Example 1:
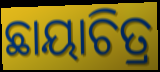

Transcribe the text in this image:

ଛାୟାଚିତ୍ର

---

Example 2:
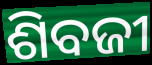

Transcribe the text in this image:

ଶିବଜୀ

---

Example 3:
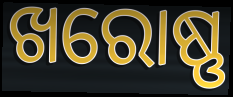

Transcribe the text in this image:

ଖରୋଷ୍ଣ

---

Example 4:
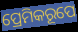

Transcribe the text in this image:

ପ୍ରେମିକରୂପେ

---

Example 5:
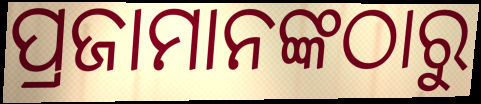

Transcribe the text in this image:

ପ୍ରଜାମାନଙ୍କଠାରୁ